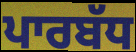
ਪਾਰਬੱਧ